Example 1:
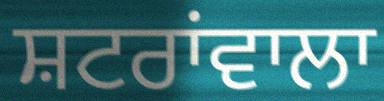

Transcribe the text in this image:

ਸ਼ਟਰਾਂਵਾਲਾ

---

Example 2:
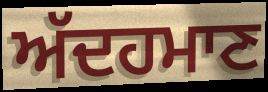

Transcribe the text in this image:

ਅੱਦਹਮਾਣ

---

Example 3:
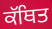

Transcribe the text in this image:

ਕੱਥਿਤ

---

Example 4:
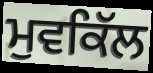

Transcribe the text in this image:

ਮੁਵਕਿੱਲ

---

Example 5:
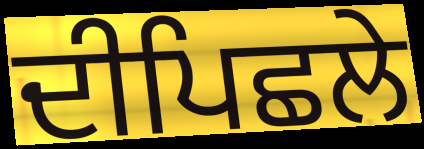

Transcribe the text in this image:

ਦੀਪਿਛਲੇ